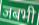
जबभी